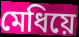
মেধিয়ে